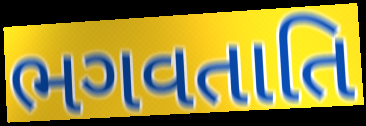
ભગવતાતિ